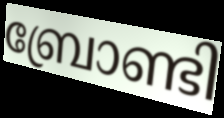
ബ്രോണ്ടി